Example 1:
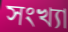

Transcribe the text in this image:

সংখ্যা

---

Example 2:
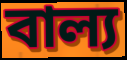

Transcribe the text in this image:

বাল্য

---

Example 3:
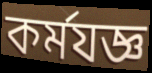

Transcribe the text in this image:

কর্মযজ্ঞ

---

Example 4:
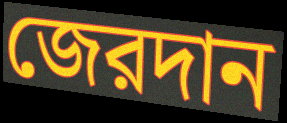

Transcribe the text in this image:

জেরদান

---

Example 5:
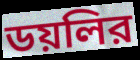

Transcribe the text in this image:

ডয়লির